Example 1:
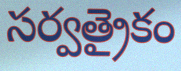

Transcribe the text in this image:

సర్వత్రైకం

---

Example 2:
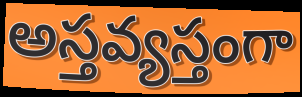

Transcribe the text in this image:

అస్తవ్యస్తంగా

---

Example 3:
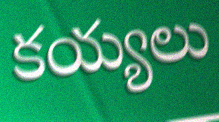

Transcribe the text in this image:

కయ్యలు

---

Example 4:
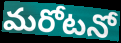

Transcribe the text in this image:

మరోటనో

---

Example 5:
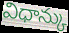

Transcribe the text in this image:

విధాన్కు